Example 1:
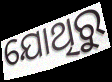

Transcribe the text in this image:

ଯୋଥିରୁ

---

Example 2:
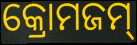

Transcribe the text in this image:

କ୍ରୋମଜମ୍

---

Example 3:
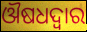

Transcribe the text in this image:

ଔଷଧଦ୍ୱାର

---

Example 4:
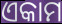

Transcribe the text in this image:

ଏକାମ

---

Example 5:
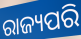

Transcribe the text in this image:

ରାଜ୍ୟପରି